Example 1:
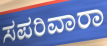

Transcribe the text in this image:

ಸಪರಿವಾರಾ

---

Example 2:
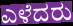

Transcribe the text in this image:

ಎಳೆದರು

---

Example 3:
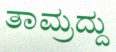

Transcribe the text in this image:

ತಾಮ್ರದ್ದು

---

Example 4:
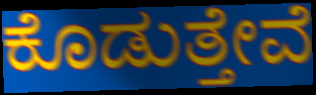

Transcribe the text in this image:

ಕೊಡುತ್ತೇವೆ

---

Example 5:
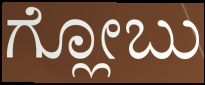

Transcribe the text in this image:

ಗ್ಲೋಬು